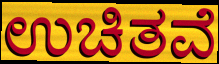
ಉಚಿತವೆ